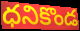
ధనికొండ